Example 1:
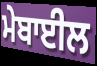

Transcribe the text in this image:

ਮੇਬਾਈਲ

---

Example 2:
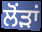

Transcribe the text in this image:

ਲੋਂੜਾਂ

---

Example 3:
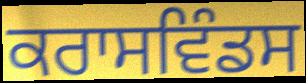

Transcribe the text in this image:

ਕਰਾਸਵਿੰਡਸ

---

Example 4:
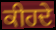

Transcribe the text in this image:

ਕੀਹਦੇ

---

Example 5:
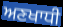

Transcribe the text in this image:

ਅਣਖਾਧੀ